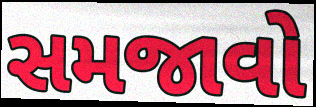
સમજાવો